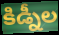
కిడ్నీల